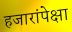
हजारांपेक्षा